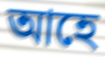
আহে